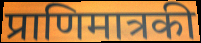
प्राणिमात्रकी